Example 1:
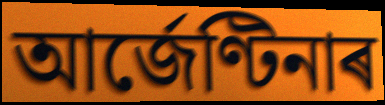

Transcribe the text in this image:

আৰ্জেণ্টিনাৰ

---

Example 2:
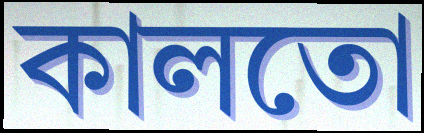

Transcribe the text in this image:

কালতো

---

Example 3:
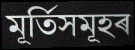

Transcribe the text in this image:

মূৰ্তিসমূহৰ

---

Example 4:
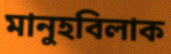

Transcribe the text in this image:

মানুহবিলাক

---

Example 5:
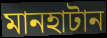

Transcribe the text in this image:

মানহাটান